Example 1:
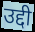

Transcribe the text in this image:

उद्दी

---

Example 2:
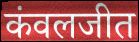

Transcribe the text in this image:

कंवलजीत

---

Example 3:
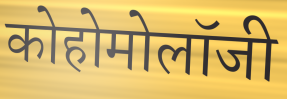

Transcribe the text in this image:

कोहोमोलॉजी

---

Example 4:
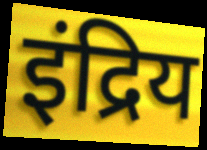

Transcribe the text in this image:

इंद्रिय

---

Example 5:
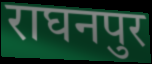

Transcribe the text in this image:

राघनपुर